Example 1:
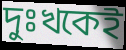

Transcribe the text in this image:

দুঃখকেই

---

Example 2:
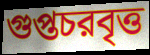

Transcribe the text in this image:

গুপ্তচরবৃত্ত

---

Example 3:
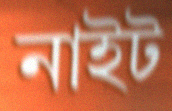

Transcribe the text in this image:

নাইট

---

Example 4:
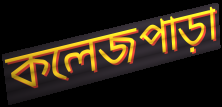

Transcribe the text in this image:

কলেজপাড়া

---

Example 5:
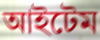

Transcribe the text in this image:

আইটেম